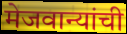
मेजवान्यांची